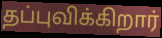
தப்புவிக்கிறார்